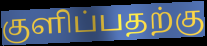
குளிப்பதற்கு